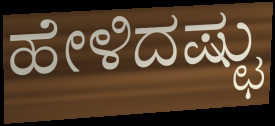
ಹೇಳಿದಷ್ಟು